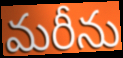
మరీను